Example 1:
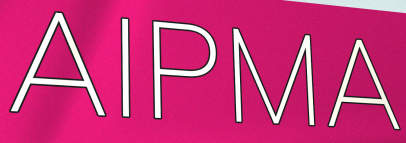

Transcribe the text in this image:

AIPMA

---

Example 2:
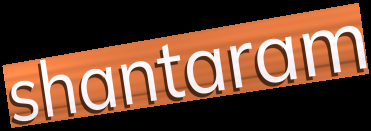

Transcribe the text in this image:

shantaram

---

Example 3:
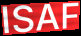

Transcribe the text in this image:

ISAF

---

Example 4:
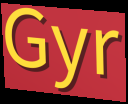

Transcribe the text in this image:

Gyr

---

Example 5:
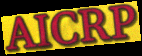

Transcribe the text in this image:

AICRP